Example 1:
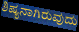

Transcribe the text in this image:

ಶಿಷ್ಯನಾಗಿರುವುದು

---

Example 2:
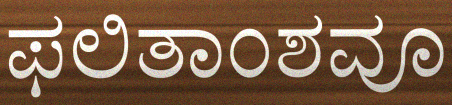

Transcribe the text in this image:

ಫಲಿತಾಂಶವೂ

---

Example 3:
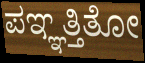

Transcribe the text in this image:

ಪಞ್ಞತ್ತಿತೋ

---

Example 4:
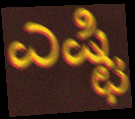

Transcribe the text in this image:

ಎಷ್ಟಿ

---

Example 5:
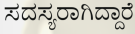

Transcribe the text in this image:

ಸದಸ್ಯರಾಗಿದ್ದಾರೆ